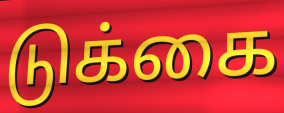
டுக்கை